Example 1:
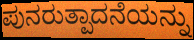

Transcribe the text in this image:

ಪುನರುತ್ಪಾದನೆಯನ್ನು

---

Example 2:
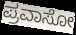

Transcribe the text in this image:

ಪ್ರವಾಸೋ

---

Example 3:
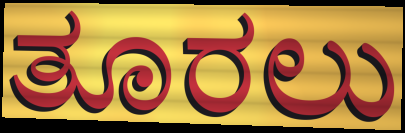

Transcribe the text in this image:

ತೂರಲು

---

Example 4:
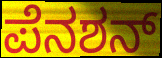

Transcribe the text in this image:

ಪೆನಶನ್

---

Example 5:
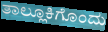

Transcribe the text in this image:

ತಾಲ್ಲೂಕಿಗೊಂದು